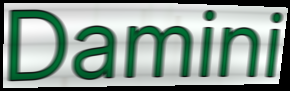
Damini